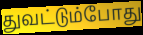
துவட்டும்போது